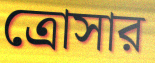
ত্রোসার